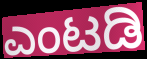
ಎಂಟಡಿ